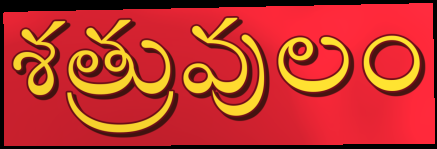
శత్రువులం